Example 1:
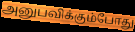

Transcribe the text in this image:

அனுபவிக்கும்போது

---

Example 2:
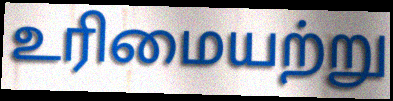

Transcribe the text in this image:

உரிமையற்று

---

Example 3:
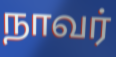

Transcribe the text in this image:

நாவர்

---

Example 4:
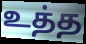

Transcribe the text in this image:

உத்த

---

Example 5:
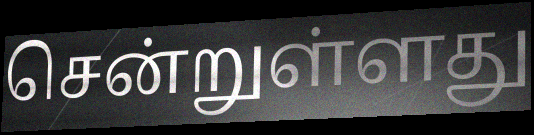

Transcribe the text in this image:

சென்றுள்ளது